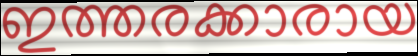
ഇത്തരക്കാരായ